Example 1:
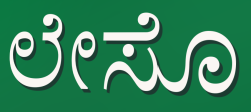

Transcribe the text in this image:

ಲೇಸೊ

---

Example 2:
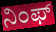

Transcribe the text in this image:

ನಿಂಫ್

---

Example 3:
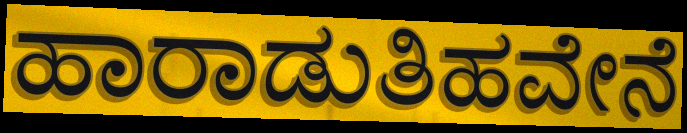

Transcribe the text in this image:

ಹಾರಾಡುತಿಹವೇನೆ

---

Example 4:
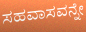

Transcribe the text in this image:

ಸಹವಾಸವನ್ನೇ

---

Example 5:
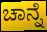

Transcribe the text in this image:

ಚಾನ್ನೆ